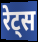
रेट्स